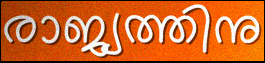
രാജ്യത്തിനു